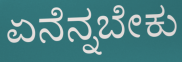
ಏನೆನ್ನಬೇಕು